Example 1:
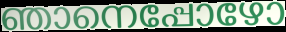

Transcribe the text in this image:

ഞാനെപ്പോഴോ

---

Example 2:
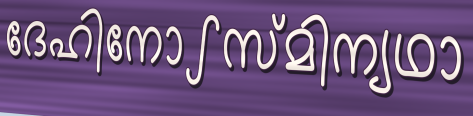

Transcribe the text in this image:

ദേഹിനോഽസ്മിന്യഥാ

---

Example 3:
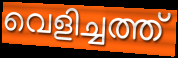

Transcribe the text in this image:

വെളിച്ചത്ത്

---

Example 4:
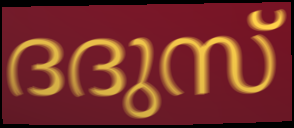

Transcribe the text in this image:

ദദുസ്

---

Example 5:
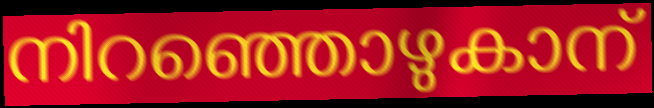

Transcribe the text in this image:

നിറഞ്ഞൊഴുകാന്